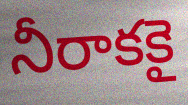
నీరాకకై